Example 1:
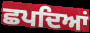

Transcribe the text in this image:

ਛਪਦਿਆਂ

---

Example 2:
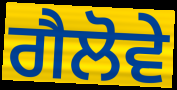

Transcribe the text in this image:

ਗੈਲੋਵੇ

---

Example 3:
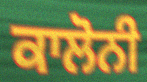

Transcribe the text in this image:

ਕਾਲੋਨੀ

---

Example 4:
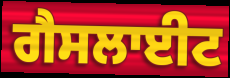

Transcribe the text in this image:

ਗੈਸਲਾਈਟ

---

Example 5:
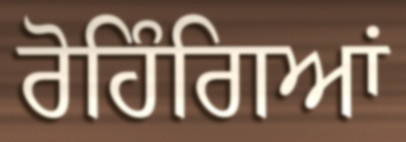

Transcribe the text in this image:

ਰੋਹਿੰਗਿਆਂ